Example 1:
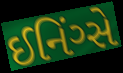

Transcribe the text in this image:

ઈનિંગ્સે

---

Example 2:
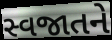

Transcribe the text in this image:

સ્વજાતને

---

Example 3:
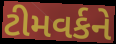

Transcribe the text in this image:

ટીમવર્કને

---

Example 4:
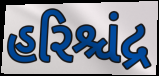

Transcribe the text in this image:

હરિશ્ચંદ્ર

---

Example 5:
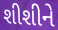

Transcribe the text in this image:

શીશીને